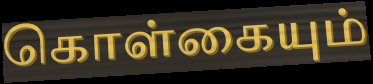
கொள்கையும்